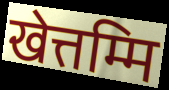
खेत्तम्मि